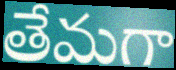
తేమగా